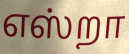
எஸ்றா